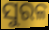
ସୁରଳ